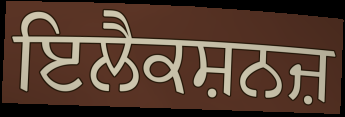
ਇਲੈਕਸ਼ਨਜ਼